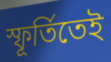
স্ফূর্তিতেই